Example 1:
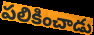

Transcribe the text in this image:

పలికించాడు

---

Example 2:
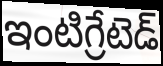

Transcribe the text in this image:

ఇంటిగ్రేటెడ్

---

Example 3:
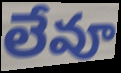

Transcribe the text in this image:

లేవూ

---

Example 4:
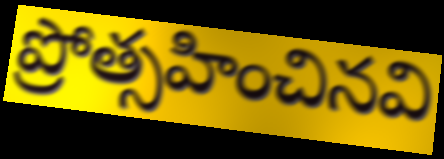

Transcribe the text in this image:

ప్రోత్సహించినవి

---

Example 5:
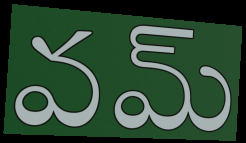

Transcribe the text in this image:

వమ్